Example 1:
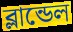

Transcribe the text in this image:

ব্লান্ডেল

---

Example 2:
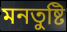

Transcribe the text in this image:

মনতুষ্টি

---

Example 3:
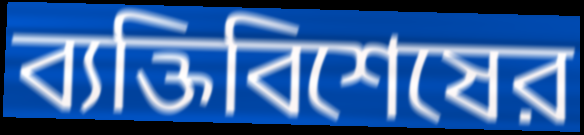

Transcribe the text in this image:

ব্যক্তিবিশেষের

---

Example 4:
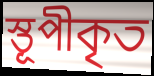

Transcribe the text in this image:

স্তূপীকৃত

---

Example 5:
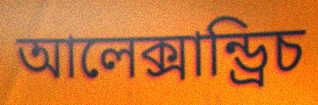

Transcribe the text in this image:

আলেক্সান্ড্রিচ